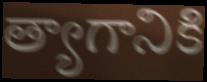
త్యాగానికి